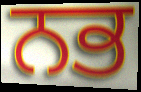
ਨਭ